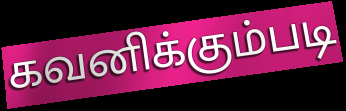
கவனிக்கும்படி